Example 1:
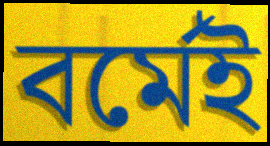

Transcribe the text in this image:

বর্মেই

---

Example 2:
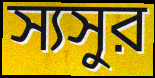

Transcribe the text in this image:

স্যসুর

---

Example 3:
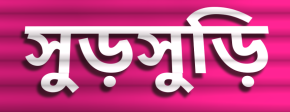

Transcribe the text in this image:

সুড়সুড়ি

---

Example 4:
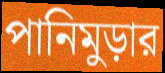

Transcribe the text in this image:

পানিমুড়ার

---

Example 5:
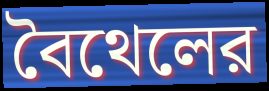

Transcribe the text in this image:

বৈথেলের